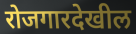
रोजगारदेखील